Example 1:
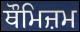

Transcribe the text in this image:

ਥੌਮਿਜ਼ਮ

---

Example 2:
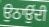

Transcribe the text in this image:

ਉਠਾਉਂਦੀ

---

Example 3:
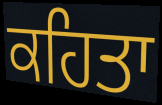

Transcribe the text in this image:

ਕਹਿਤਾ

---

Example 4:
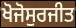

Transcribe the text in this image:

ਖੋਜੋਸੁਰਜੀਤ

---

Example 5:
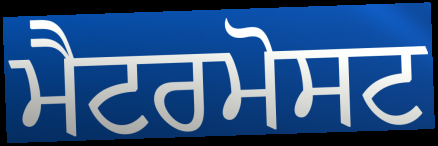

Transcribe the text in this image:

ਮੈਟਰਮੋਸਟ